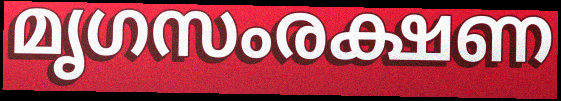
മൃഗസംരക്ഷണ